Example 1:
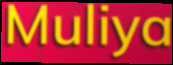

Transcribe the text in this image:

Muliya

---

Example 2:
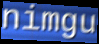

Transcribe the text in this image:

nimgu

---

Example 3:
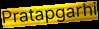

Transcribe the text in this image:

Pratapgarhi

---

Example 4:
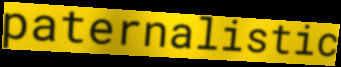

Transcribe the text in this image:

paternalistic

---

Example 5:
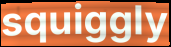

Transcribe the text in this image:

squiggly